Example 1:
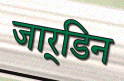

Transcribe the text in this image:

जार्डिन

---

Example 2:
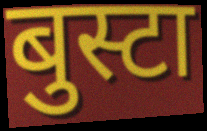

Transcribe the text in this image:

बुस्टा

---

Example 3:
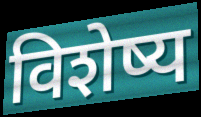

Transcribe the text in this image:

विशेष्य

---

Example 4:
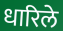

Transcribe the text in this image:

धारिले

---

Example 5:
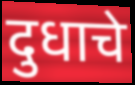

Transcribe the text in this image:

दुधाचे